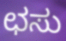
ಛಸು